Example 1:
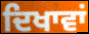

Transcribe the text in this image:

ਦਿਖਾਵਾਂ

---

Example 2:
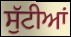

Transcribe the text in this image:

ਸੁੱਟੀਆਂ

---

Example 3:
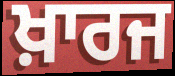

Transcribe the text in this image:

ਖ਼ਾਰਜ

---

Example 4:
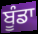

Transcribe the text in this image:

ਬੂੰਡਾ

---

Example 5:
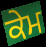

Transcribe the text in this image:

ਕੇਮ